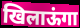
खिलाऊंगा